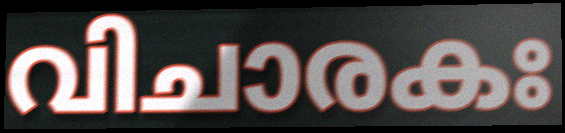
വിചാരകഃ